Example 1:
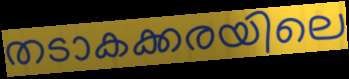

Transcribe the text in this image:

തടാകക്കരയിലെ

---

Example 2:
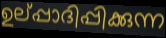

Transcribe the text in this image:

ഉല്പ്പാദിപ്പിക്കുന്ന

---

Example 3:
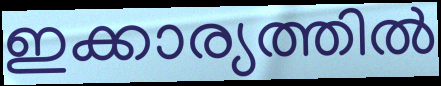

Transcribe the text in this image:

ഇക്കാര്യത്തിൽ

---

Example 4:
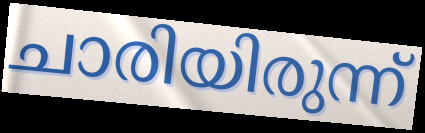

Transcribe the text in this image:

ചാരിയിരുന്ന്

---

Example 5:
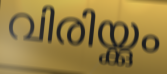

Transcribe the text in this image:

വിരിയ്ക്കും